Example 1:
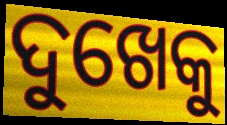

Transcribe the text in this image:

ଦୁଖେକୁ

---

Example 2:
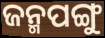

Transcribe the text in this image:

ଜନ୍ମପଙ୍ଗୁ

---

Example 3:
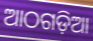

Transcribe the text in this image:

ଆଠଗଡ଼ିଆ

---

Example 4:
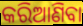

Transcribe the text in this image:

କରିଆଣିବା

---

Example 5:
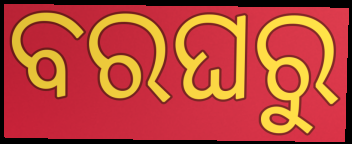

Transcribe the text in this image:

ବରଘରୁ